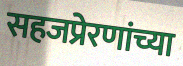
सहजप्रेरणांच्या